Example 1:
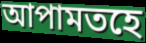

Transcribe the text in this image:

আপামতহে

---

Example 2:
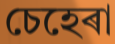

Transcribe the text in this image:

চেহেৰা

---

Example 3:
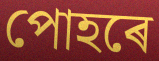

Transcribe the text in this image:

পোহৰে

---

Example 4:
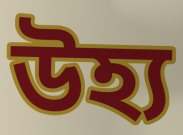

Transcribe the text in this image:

উহ্য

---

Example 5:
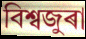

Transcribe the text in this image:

বিশ্বজুৰা